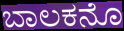
ಬಾಲಕನೊ